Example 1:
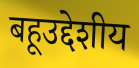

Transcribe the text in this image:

बहूउद्देशीय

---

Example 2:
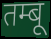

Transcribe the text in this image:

तम्बू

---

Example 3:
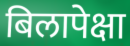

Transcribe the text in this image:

बिलापेक्षा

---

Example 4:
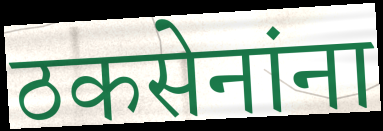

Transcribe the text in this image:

ठकसेनांना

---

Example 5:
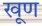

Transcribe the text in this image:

खूण